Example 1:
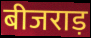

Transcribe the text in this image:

बीजराड़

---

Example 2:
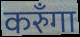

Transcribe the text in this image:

करुँगा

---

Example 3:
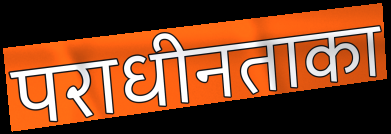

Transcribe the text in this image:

पराधीनताका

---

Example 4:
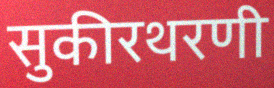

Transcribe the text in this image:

सुकीरथरणी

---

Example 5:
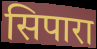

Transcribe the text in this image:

सिपारा